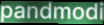
pandmodi